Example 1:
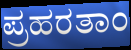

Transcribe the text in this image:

ಪ್ರಹರತಾಂ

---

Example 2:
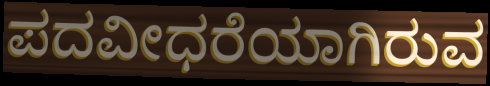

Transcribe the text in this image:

ಪದವೀಧರೆಯಾಗಿರುವ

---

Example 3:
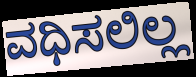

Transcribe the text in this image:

ವಧಿಸಲಿಲ್ಲ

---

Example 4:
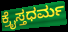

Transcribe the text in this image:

ಕ್ರೈಸ್ತಧರ್ಮ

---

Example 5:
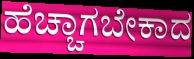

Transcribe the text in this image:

ಹೆಚ್ಚಾಗಬೇಕಾದ